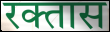
रक्तास